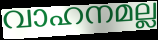
വാഹനമല്ല